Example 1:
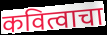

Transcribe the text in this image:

कवित्वाचा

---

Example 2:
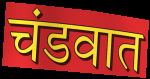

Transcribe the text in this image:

चंडवात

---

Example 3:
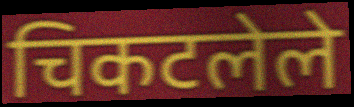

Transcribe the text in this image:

चिकटलेले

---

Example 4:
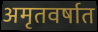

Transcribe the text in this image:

अमृतवर्षात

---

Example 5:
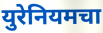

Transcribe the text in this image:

युरेनियमचा